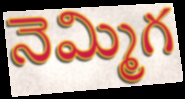
నెమ్మిగ